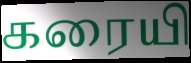
கரையி